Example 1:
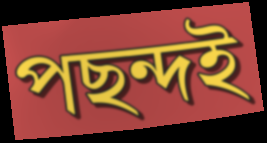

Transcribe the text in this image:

পছন্দই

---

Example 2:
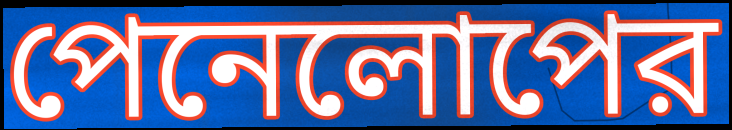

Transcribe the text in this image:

পেনেলোপের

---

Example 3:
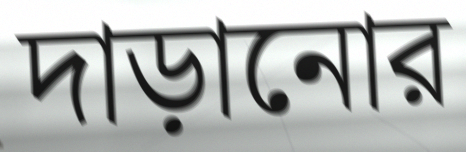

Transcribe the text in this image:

দাড়ানোর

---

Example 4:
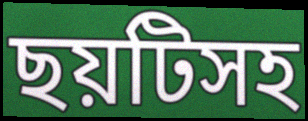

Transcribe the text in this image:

ছয়টিসহ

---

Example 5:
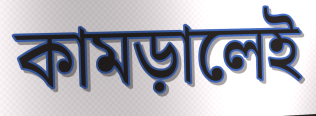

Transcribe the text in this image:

কামড়ালেই